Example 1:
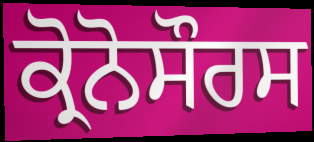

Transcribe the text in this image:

ਕ੍ਰੋਨੋਸੌਰਸ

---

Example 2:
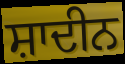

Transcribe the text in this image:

ਸ਼ਾਦੀਨ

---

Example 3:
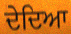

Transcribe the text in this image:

ਦੇਦਿਆ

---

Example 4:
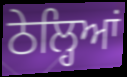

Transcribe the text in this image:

ਠੇਲ੍ਹਿਆਂ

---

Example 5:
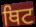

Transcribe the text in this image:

ਥਿਟ